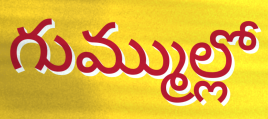
గుమ్ముల్లో